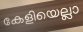
കേളിയെല്ലാ